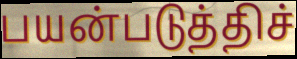
பயன்படுத்திச்